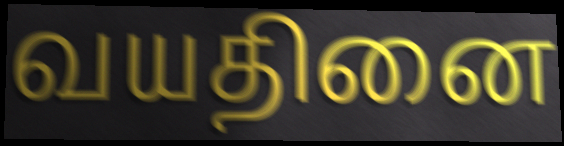
வயதினை